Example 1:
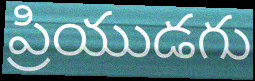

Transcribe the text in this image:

ప్రియుడగు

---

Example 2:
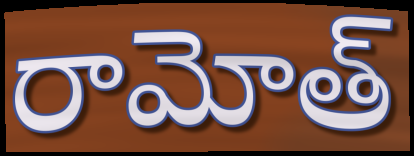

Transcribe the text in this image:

రామోత్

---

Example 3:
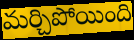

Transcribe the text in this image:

మర్చిపోయింది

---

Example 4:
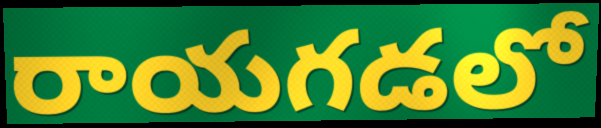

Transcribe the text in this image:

రాయగడలో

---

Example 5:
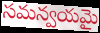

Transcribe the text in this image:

సమన్వయమై